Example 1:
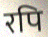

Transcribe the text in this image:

रपि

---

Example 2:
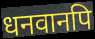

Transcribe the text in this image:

धनवानपि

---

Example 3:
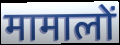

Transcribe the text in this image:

मामालों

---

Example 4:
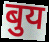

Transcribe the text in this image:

बुय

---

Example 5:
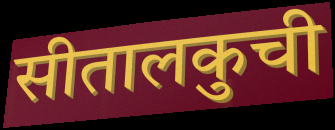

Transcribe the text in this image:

सीतालकुची